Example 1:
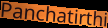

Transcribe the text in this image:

Panchatirthi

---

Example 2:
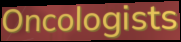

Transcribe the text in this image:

Oncologists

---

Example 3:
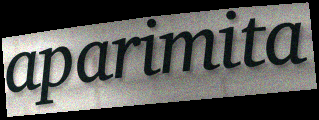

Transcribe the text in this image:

aparimita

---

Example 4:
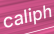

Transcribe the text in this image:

caliph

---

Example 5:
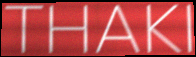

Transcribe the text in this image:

THAKI